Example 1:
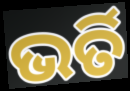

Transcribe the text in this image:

ଭର୍ତି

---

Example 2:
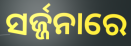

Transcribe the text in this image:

ସର୍ଜ୍ଜନାରେ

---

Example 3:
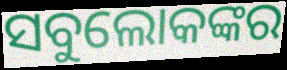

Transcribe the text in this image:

ସବୁଲୋକଙ୍କର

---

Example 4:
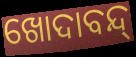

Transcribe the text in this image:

ଖୋଦାବନ୍ଦ୍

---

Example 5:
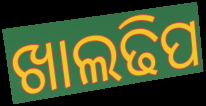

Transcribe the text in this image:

ଖାଲଢିପ